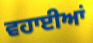
ਵਹਾਈਆਂ